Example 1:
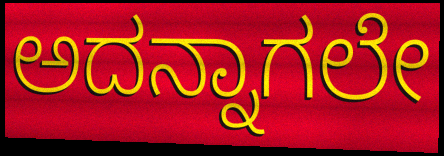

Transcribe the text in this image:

ಅದನ್ನಾಗಲೇ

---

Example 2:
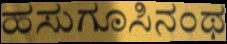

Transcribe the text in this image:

ಹಸುಗೂಸಿನಂಥ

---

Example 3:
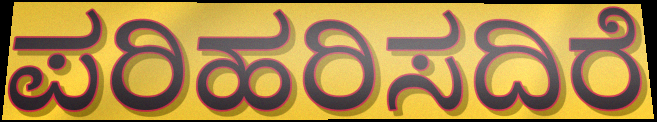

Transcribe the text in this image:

ಪರಿಹರಿಸದಿರೆ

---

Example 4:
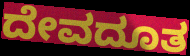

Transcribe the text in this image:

ದೇವದೂತ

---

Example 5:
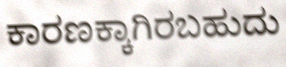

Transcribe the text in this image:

ಕಾರಣಕ್ಕಾಗಿರಬಹುದು